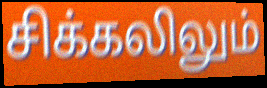
சிக்கலிலும்